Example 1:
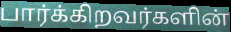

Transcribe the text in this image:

பார்க்கிறவர்களின்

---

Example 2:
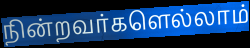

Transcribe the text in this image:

நின்றவர்களெல்லாம்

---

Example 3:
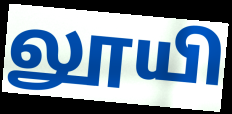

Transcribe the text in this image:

லூயி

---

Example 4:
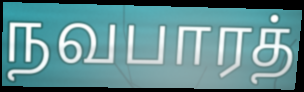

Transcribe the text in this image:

நவபாரத்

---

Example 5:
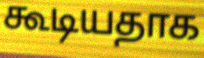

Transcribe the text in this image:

கூடியதாக